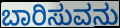
ಬಾರಿಸುವನು